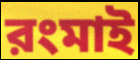
রংমাই